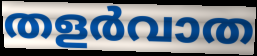
തളർവാത